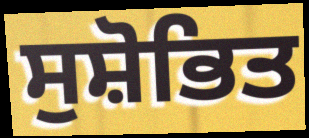
ਸੁਸ਼ੋਭਿਤ